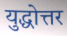
युद्धोत्तर